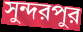
সুন্দরপুর